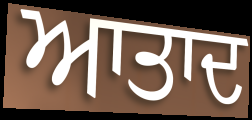
ਆਤਾਦ